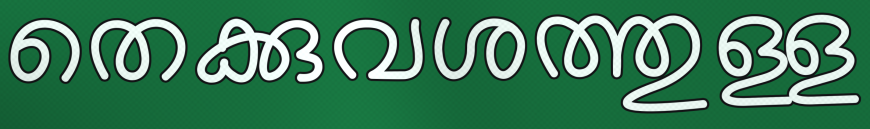
തെക്കുവശത്തുള്ള